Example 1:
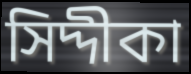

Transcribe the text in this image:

সিদ্দীকা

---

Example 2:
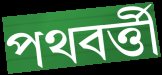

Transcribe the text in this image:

পথবর্ত্তী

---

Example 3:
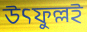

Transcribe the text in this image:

উৎফুল্লই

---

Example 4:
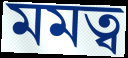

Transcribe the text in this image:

মমত্ব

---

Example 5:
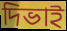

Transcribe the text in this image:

দিভাই